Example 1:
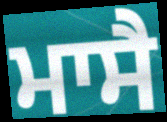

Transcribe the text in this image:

ਮਾਸੈ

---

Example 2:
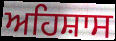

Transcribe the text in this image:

ਅਹਿਸ਼ਾਸ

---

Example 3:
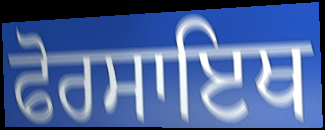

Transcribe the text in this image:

ਫੋਰਸਾਇਥ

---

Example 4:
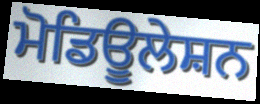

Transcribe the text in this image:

ਮੋਡਿਊਲੇਸ਼ਨ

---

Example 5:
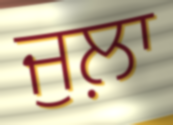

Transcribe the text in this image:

ਜੁਲ਼ਾ